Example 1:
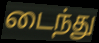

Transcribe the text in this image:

டைந்து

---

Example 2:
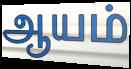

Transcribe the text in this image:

ஆயம்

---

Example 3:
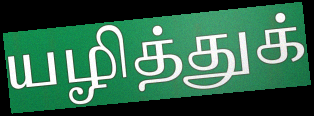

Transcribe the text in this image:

யழித்துக்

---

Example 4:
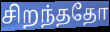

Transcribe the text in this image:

சிறந்ததோ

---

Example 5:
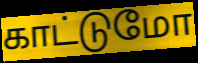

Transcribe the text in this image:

காட்டுமோ